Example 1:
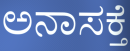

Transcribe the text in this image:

ಅನಾಸಕ್ತೆ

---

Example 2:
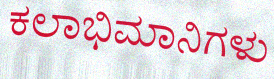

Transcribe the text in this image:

ಕಲಾಭಿಮಾನಿಗಳು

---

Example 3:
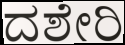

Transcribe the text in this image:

ದಶೇರಿ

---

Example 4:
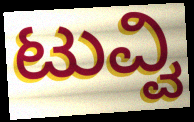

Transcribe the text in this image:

ಟುವ್ವಿ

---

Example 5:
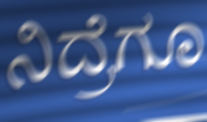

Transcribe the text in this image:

ನಿದ್ರೆಗೂ